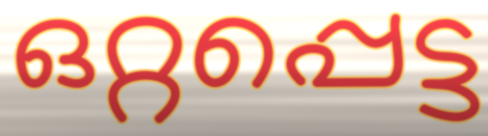
ഒറ്റപ്പെട്ട